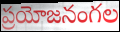
ప్రయోజనంగల